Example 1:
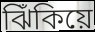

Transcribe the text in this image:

ঝিঁকিয়ে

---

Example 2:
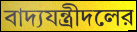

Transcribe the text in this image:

বাদ্যযন্ত্রীদলের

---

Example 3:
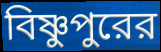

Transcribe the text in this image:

বিষ্ণুপুরের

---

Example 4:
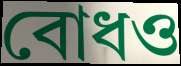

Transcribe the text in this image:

বোধও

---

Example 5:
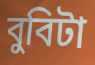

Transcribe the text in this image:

বুবিটা